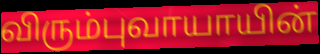
விரும்புவாயாயின்